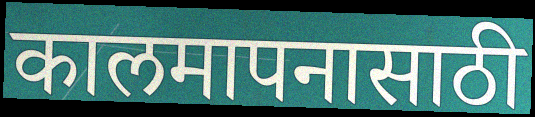
कालमापनासाठी